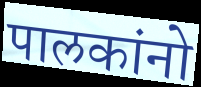
पालकांनो